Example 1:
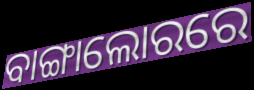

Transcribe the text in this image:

ବାଙ୍ଗାଲୋରରେ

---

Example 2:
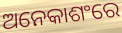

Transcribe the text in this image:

ଅନେକାଶଂରେ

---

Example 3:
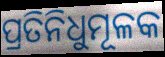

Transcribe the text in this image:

ପ୍ରତିନିଧୁମୂଳକ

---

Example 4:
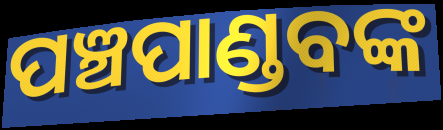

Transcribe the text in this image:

ପଞ୍ଚପାଣ୍ଡବଙ୍କ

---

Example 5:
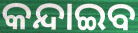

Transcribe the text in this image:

କନ୍ଦାଇବ